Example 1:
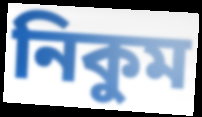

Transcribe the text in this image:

নিকুম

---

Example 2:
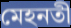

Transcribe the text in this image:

মেহনতী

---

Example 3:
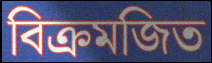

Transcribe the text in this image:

বিক্রমজিত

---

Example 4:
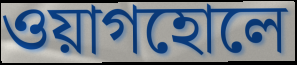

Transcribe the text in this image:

ওয়াগহোলে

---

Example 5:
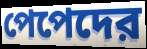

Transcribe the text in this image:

পেপেদের